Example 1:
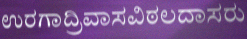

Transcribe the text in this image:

ಉರಗಾದ್ರಿವಾಸವಿಠಲದಾಸರು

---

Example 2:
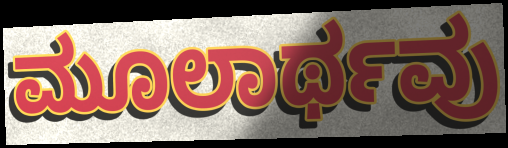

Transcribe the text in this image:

ಮೂಲಾರ್ಥವು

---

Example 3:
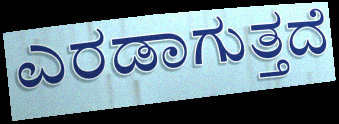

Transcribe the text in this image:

ಎರಡಾಗುತ್ತದೆ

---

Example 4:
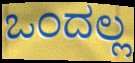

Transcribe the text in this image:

ಒಂದಲ್ಲ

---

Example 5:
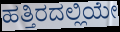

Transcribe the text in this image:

ಹತ್ತಿರದಲ್ಲಿಯೇ